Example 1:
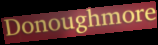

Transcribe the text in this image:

Donoughmore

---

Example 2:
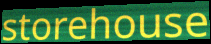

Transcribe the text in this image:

storehouse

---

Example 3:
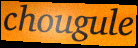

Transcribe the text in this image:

chougule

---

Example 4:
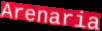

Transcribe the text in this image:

Arenaria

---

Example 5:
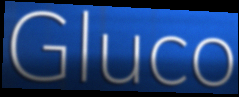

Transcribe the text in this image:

Gluco